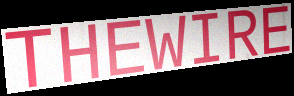
THEWIRE